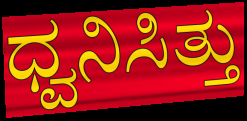
ಧ್ವನಿಸಿತ್ತು